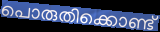
പൊരുതിക്കൊണ്ട്